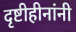
दृष्टीहीनांनी